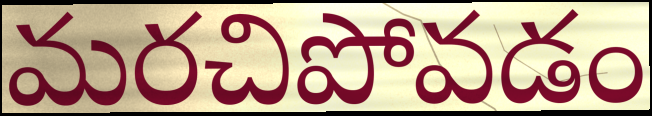
మరచిపోవడం